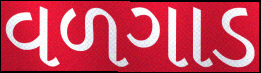
વળગાડ